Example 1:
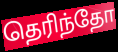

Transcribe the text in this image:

தெரிந்தோ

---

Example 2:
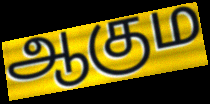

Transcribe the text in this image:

ஆகும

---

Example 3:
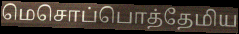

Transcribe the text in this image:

மெசொப்பொத்தேமிய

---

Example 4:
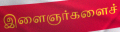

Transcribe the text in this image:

இளைஞர்களைச்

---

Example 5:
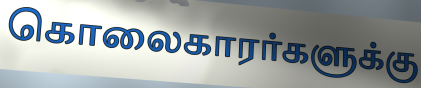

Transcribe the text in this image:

கொலைகாரர்களுக்கு